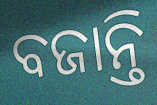
ବଜାନ୍ତି